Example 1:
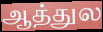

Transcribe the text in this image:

ஆத்துல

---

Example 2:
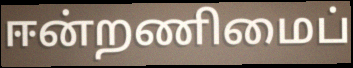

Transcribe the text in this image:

ஈன்றணிமைப்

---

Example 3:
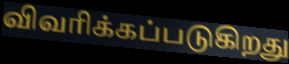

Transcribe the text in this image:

விவரிக்கப்படுகிறது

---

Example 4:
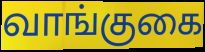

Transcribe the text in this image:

வாங்குகை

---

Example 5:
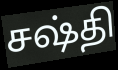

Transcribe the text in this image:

சஷ்தி